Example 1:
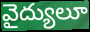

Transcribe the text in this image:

వైద్యులూ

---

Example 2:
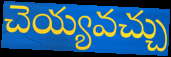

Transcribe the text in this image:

చెయ్యవచ్చు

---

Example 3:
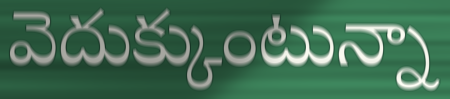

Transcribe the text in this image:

వెదుక్కుంటున్నా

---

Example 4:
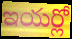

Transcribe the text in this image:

ఇయర్లో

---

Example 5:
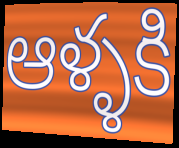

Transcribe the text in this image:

ఆళ్ళకి